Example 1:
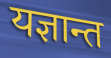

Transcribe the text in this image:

यज्ञान्त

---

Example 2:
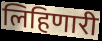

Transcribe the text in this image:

लिहिणारी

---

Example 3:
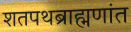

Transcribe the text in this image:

शतपथब्राह्मणांत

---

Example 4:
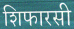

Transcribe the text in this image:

शिफारसी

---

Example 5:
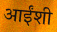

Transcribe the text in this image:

आईंशी